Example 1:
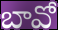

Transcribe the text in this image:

బావో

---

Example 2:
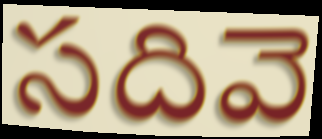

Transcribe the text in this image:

సదివె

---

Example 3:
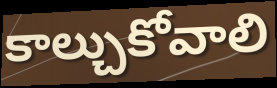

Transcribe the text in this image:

కాల్చుకోవాలి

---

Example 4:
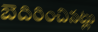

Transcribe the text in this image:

బెదిరించినట్లు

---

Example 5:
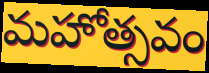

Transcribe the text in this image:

మహోత్సవం